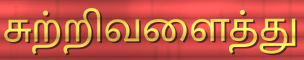
சுற்றிவளைத்து